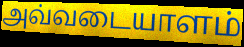
அவ்வடையாளம்